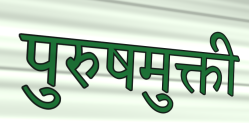
पुरुषमुक्ती